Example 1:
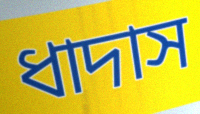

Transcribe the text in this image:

ধাদাস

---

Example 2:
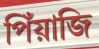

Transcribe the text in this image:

পিঁয়াজি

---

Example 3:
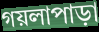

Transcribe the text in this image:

গয়লাপাড়া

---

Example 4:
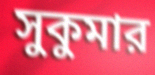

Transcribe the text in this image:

সুকুমার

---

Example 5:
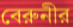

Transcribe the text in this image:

বেরুনীর